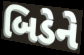
બિડેને